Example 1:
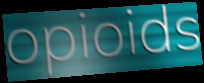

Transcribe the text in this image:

opioids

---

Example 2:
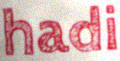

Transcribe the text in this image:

hadi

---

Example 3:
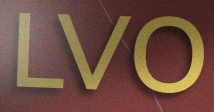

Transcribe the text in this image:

LVO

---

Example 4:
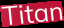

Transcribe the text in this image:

Titan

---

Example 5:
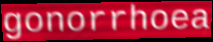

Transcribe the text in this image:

gonorrhoea